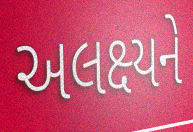
અલક્ષ્યને